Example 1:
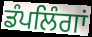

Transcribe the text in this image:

ਡੰਪਲਿੰਗਾਂ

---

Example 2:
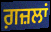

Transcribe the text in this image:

ਗ਼ਜ਼ਲਾਂ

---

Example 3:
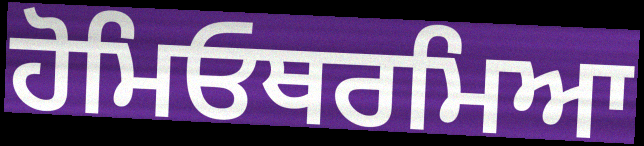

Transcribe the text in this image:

ਹੋਮਿਓਥਰਮਿਆ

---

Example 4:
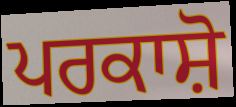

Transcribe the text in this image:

ਪਰਕਾਸ਼ੋ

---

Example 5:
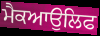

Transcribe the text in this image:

ਮੈਕਆਉਲਿਫ